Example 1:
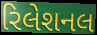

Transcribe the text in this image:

રિલેશનલ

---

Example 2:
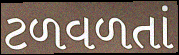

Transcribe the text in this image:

ટળવળતાં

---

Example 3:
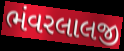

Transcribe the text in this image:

ભંવરલાલજી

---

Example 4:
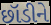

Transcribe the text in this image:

છૉડીને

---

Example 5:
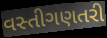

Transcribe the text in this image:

વસ્તીગણતરી